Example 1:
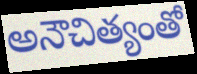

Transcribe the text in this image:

అనౌచిత్యంతో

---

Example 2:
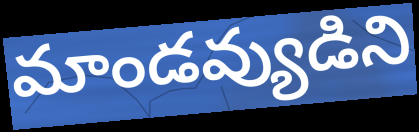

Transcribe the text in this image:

మాండవ్యుడిని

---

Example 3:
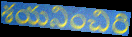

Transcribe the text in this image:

శయనించిరి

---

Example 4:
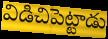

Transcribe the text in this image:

విడిచిపెట్టాడు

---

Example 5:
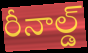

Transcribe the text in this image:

రీనాల్డ్